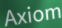
Axiom